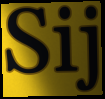
Sij